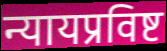
न्यायप्रविष्ट